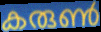
കരുൺ